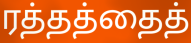
ரத்தத்தைத்